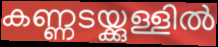
കണ്ണടയ്ക്കുള്ളിൽ